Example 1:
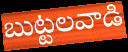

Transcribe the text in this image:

బుట్టలవాడి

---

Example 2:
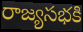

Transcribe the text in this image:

రాజ్యసభకి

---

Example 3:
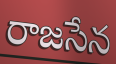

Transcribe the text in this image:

రాజసేన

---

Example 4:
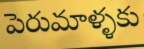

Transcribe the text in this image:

పెరుమాళ్ళకు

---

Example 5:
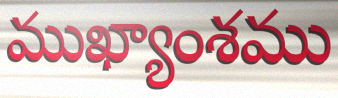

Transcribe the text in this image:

ముఖ్యాంశము